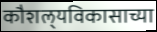
कौशल्यविकासाच्या